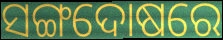
ସଙ୍ଗଦୋଷରେ